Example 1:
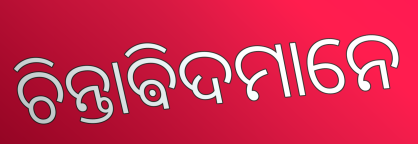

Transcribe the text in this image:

ଚିନ୍ତାଵିଦମାନେ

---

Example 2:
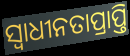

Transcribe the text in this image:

ସ୍ୱାଧୀନତାପ୍ରାପ୍ତି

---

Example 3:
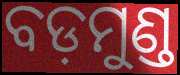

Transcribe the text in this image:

ବଡ଼ମୁଣ୍ଡ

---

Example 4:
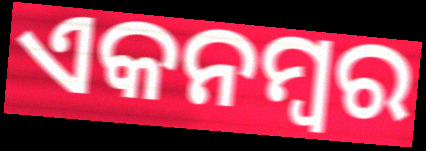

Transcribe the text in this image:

ଏକନମ୍ବର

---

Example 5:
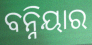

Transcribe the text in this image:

ବନ୍ନିୟାର